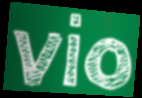
vio